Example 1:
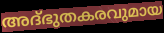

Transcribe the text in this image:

അദ്ഭുതകരവുമായ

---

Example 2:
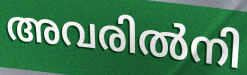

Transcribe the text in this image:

അവരിൽനി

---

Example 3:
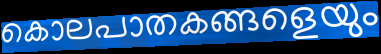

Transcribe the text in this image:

കൊലപാതകങ്ങളെയും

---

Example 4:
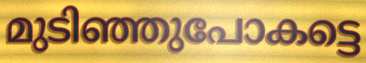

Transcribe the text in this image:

മുടിഞ്ഞുപോകട്ടെ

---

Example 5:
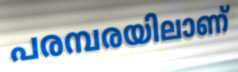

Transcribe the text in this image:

പരമ്പരയിലാണ്